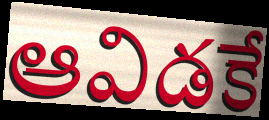
ఆవిడకే